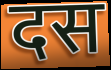
दस